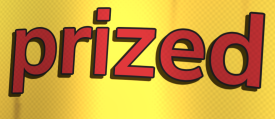
prized